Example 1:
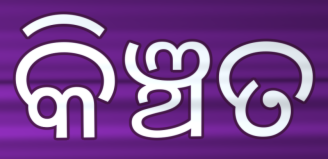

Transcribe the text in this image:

କିଞ୍ଚତ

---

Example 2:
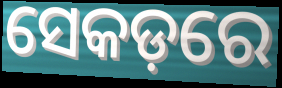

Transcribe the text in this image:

ସେକଡ଼ରେ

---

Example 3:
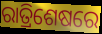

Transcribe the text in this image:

ରାତ୍ରିଶେଷରେ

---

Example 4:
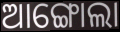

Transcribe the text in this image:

ଆଙ୍ଗୋଲା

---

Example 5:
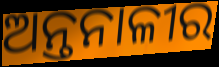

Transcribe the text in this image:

ଅନ୍ତନାଳୀର